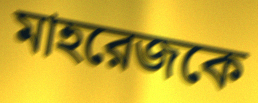
মাহরেজকে